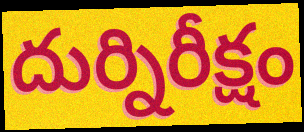
దుర్నిరీక్షం